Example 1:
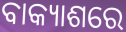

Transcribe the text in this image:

ବାକ୍ୟାଶରେ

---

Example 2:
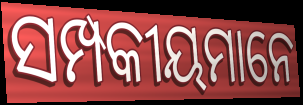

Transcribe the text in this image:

ସମ୍ପକୀୟମାନେ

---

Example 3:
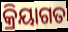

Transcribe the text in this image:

କ୍ରିୟାଗତ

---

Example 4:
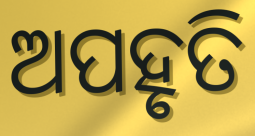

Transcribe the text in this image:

ଅପହୃତି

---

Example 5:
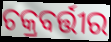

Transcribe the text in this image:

ଚକ୍ରବର୍ତ୍ତୀର